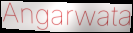
Angarwata